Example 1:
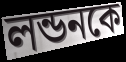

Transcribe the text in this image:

লন্ডনকে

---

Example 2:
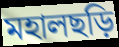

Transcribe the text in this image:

মহালছড়ি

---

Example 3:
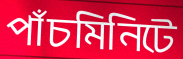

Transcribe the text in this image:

পাঁচমিনিটে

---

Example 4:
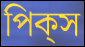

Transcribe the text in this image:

পিক্‌স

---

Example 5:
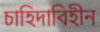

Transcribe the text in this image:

চাহিদাবিহীন